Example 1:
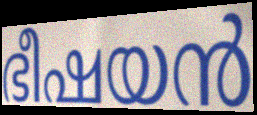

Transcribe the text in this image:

ഭീഷയൻ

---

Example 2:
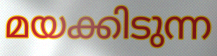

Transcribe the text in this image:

മയക്കിടുന്ന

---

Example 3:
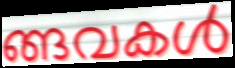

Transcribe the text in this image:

ങ്ങവകൾ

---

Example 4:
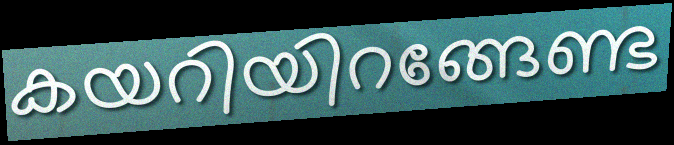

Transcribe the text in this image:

കയറിയിറങ്ങേണ്ട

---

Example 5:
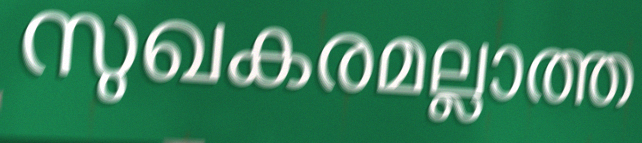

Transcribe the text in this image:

സുഖകരമല്ലാത്ത